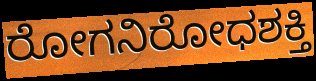
ರೋಗನಿರೋಧಶಕ್ತಿ